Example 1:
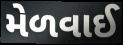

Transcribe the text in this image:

મેળવાઈ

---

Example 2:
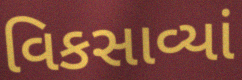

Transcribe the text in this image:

વિકસાવ્યાં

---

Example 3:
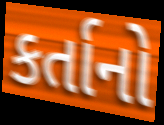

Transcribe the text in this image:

કર્તાનો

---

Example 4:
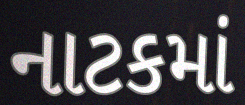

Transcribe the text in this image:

નાટકમાં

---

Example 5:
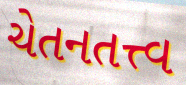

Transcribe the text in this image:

ચેતનતત્ત્વ